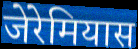
जेरेमियास